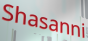
Shasanni